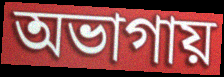
অভাগায়